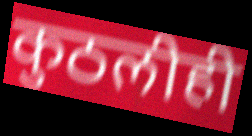
कुठलीही